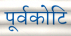
पूर्वकोटि